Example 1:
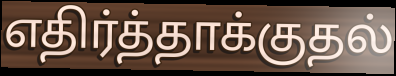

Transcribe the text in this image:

எதிர்த்தாக்குதல்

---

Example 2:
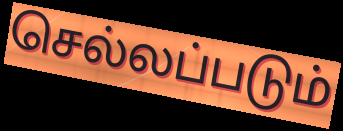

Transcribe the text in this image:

செல்லப்படும்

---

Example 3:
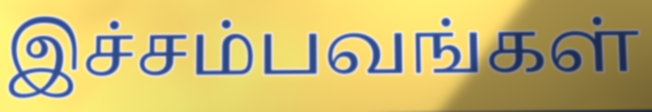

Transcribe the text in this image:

இச்சம்பவங்கள்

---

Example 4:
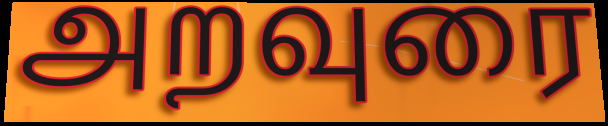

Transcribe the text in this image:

அறவுரை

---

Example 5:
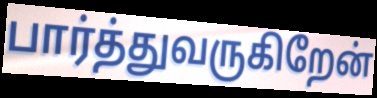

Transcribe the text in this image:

பார்த்துவருகிறேன்